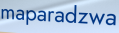
maparadzwa